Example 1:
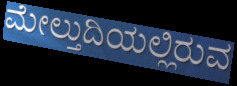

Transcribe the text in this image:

ಮೇಲ್ತುದಿಯಲ್ಲಿರುವ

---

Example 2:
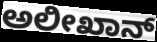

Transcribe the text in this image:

ಅಲೀಖಾನ್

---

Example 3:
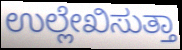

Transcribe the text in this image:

ಉಲ್ಲೇಖಿಸುತ್ತಾ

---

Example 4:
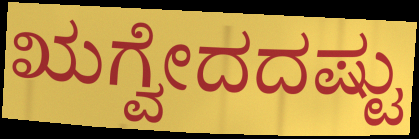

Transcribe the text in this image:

ಋಗ್ವೇದದಷ್ಟು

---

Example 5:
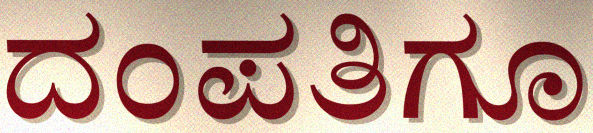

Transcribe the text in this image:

ದಂಪತಿಗೂ